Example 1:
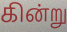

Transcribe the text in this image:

கின்று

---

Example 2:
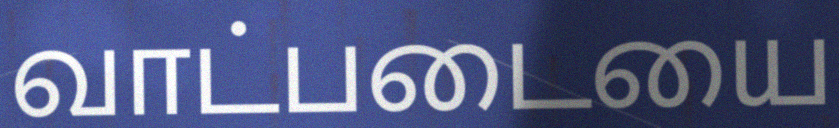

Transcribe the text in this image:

வாட்படையை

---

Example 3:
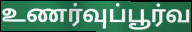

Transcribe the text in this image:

உணர்வுப்பூர்வ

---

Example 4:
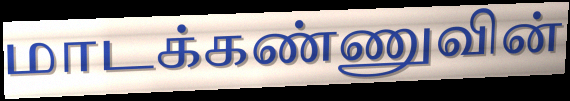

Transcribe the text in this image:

மாடக்கண்ணுவின்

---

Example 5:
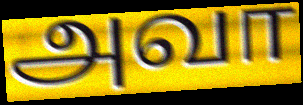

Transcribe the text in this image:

அவா